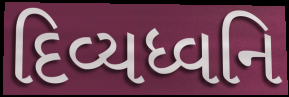
દિવ્યધ્વનિ